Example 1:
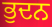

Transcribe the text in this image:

ਭੁਦਨ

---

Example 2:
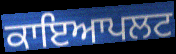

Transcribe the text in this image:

ਕਾਇਆਪਲਟ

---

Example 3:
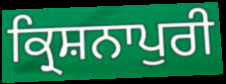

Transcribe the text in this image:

ਕ੍ਰਿਸ਼ਨਾਪੁਰੀ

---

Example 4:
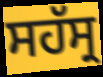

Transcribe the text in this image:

ਸਹੱਸ੍ਰ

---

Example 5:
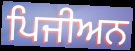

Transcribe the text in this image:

ਪਿਜੀਅਨ